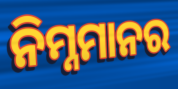
ନିମ୍ନମାନର